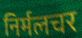
निर्मलचर